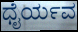
ಧೈರ್ಯವ